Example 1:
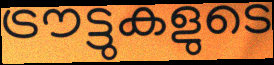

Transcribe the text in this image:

ട്രൗട്ടുകളുടെ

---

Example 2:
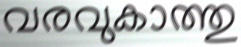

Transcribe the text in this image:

വരവുകാത്തു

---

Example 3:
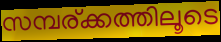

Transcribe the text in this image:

സമ്പര്ക്കത്തിലൂടെ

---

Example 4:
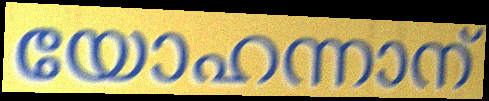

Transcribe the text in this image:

യോഹന്നാന്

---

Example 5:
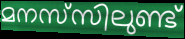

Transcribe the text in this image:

മനസ്‌സിലുണ്ട്